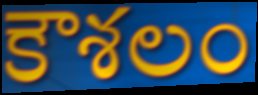
కౌశలం